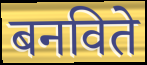
बनविते